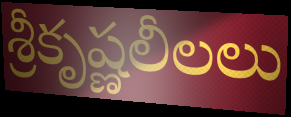
శ్రీకృష్ణలీలలు